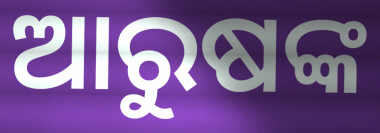
ଆରୁଷଙ୍କ